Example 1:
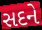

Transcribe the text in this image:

સદને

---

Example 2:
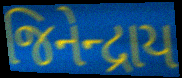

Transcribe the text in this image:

જિનેન્દ્રાય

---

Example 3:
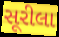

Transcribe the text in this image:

સૂરીલા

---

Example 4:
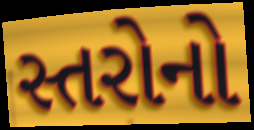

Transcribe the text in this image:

સ્તરોનો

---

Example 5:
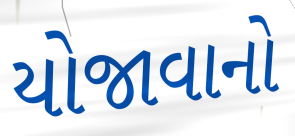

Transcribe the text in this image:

યોજાવાનો